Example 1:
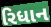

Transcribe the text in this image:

રિધાન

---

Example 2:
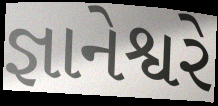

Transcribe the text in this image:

જ્ઞાનેશ્વરે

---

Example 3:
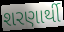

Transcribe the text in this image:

શરણાર્થી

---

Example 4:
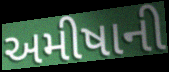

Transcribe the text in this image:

અમીષાની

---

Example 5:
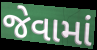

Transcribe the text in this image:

જેવામાં